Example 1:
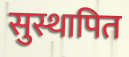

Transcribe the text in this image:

सुस्थापित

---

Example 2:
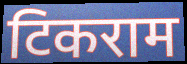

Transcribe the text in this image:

टिकराम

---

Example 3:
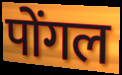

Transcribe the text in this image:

पोंगल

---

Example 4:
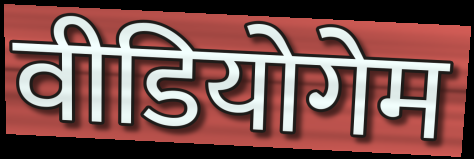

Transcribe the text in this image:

वीडियोगेम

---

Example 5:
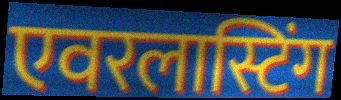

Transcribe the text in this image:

एवरलास्टिंग